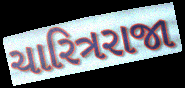
ચારિત્રરાજા